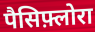
पैसिफ़्लोरा